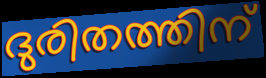
ദുരിതത്തിന്